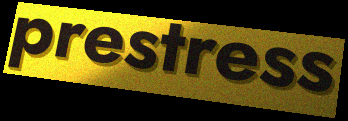
prestress